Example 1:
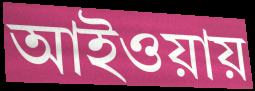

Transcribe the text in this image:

আইওয়ায়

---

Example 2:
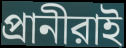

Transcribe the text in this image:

প্রানীরাই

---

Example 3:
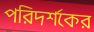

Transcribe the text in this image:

পরিদর্শকের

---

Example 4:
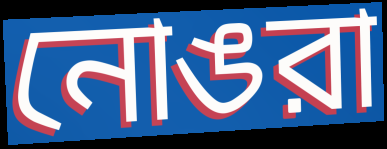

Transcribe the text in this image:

নোঙরা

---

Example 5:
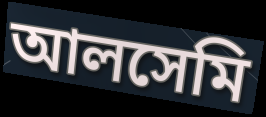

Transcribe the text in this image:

আলসেমি